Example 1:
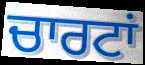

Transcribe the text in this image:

ਚਾਰਟਾਂ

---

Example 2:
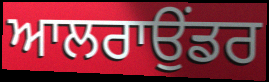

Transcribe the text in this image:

ਆਲਰਾਉਂਡਰ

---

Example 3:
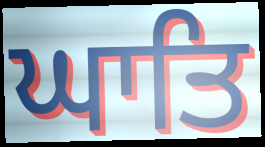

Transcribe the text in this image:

ਘਾਤਿ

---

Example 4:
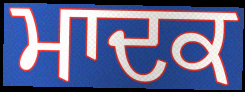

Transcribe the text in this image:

ਮਾਦਕ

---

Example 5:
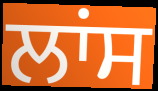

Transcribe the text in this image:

ਲਾਂਸ